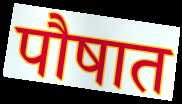
पौषात